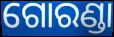
ଗୋରଣ୍ଡା